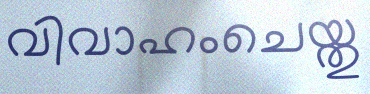
വിവാഹംചെയ്തു